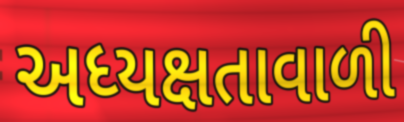
અધ્યક્ષતાવાળી